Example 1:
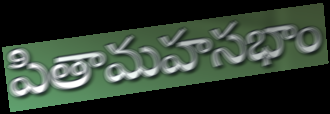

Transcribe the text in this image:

పితామహసభాం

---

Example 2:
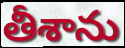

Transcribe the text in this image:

తీశాను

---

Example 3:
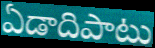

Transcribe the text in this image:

ఏడాదిపాటు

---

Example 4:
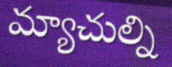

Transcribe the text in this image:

మ్యాచుల్ని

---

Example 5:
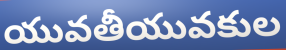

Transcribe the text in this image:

యువతీయువకుల